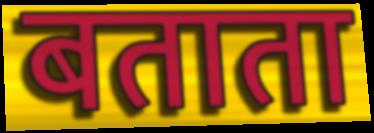
बताता